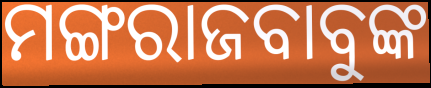
ମଙ୍ଗରାଜବାବୁଙ୍କ